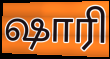
ஷாரி